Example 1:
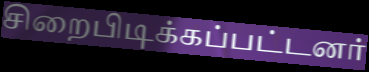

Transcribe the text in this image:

சிறைபிடிக்கப்பட்டனர்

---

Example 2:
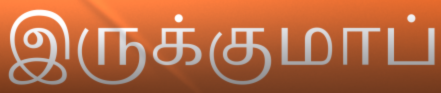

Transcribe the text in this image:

இருக்குமாப்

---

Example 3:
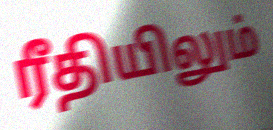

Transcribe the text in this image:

ரீதியிலும்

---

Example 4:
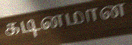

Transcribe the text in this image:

கடினமான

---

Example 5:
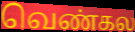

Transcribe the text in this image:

வெண்கல